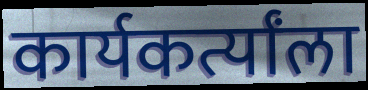
कार्यकर्त्यांला